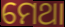
ମେଥା